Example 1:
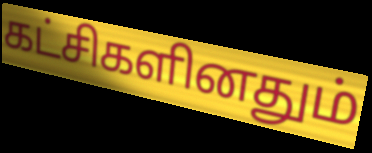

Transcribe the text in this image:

கட்சிகளினதும்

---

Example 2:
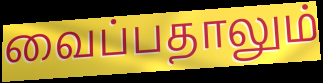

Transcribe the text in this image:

வைப்பதாலும்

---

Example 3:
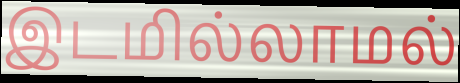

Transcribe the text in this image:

இடமில்லாமல்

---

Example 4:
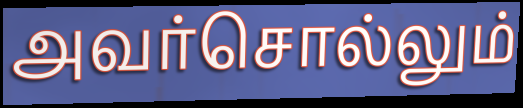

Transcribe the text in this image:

அவர்சொல்லும்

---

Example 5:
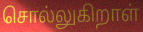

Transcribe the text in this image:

சொல்லுகிறாள்